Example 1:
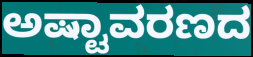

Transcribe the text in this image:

ಅಷ್ಟಾವರಣದ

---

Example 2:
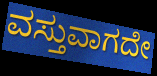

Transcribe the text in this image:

ವಸ್ತುವಾಗದೇ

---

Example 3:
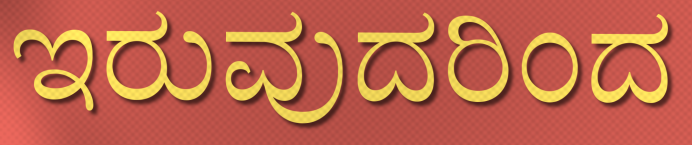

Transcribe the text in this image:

ಇರುವುದರಿಂದ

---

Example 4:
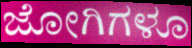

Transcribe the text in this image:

ಜೋಗಿಗಳೂ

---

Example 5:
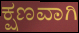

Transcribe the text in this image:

ಕ್ಷಣವಾಗಿ